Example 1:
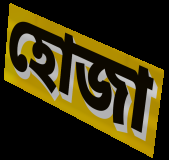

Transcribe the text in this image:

হোজা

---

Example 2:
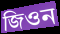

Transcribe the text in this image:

জিওন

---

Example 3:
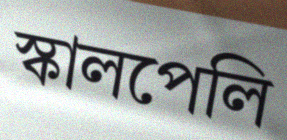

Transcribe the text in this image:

স্কালপেলি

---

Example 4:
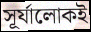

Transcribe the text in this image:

সূর্যালোকই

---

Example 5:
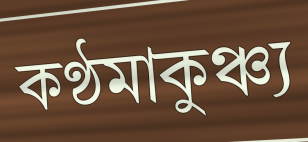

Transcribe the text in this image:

কণ্ঠমাকুঞ্চ্য